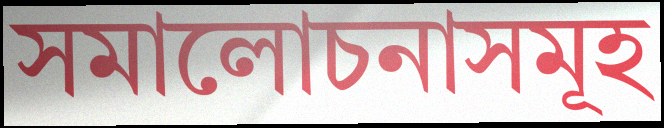
সমালোচনাসমূহ